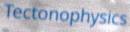
Tectonophysics